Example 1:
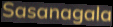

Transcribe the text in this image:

Sasanagala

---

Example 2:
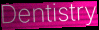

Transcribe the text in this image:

Dentistry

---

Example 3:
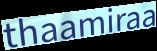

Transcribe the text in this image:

thaamiraa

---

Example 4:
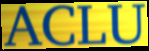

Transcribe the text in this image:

ACLU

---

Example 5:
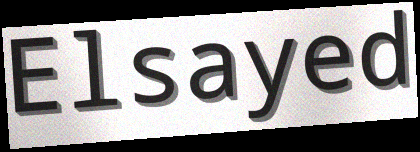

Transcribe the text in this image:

Elsayed